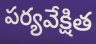
పర్యవేక్షిత